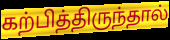
கற்பித்திருந்தால்